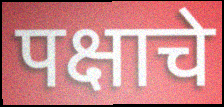
पक्षाचे